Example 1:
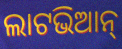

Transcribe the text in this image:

ଲାଟଭିଆନ୍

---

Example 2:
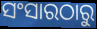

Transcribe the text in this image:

ସଂସାରଠାରୁ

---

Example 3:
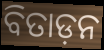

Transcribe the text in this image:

ବିତାଡ଼ନ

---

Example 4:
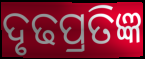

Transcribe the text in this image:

ଦୃଢପ୍ରତିଜ୍ଞ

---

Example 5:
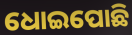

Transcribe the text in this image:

ଧୋଇପୋଛି